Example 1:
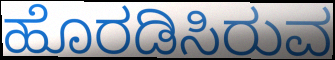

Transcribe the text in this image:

ಹೊರಡಿಸಿರುವ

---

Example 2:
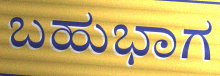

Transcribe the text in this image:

ಬಹುಭಾಗ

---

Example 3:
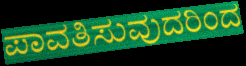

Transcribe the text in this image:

ಪಾವತಿಸುವುದರಿಂದ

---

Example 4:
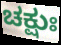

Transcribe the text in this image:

ಚಕ್ಷುಃ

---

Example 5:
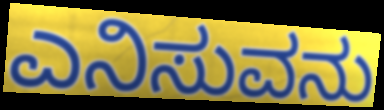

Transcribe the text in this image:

ಎನಿಸುವನು